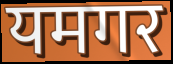
यमगर